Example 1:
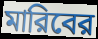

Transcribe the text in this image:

মারিবের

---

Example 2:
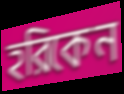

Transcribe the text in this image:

হরিকেন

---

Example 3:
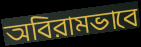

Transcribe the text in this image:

অবিরামভাবে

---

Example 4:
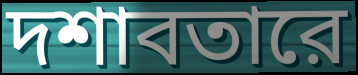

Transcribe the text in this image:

দশাবতারে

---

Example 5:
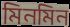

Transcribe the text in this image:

মিনমিন